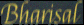
Bharisal